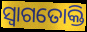
ସ୍ଵାଗତୋକ୍ତି